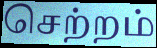
செற்றம்